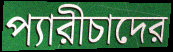
প্যারীচাদের